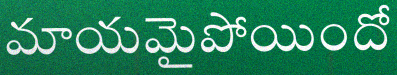
మాయమైపోయిందో